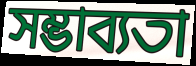
সম্ভাব্যতা